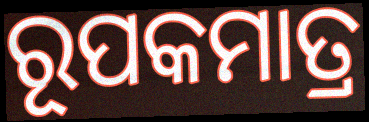
ରୂପକମାତ୍ର